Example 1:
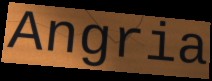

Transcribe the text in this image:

Angria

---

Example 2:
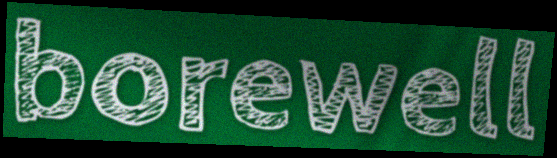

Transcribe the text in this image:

borewell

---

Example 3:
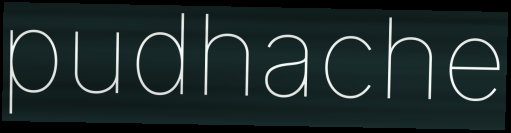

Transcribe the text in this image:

pudhache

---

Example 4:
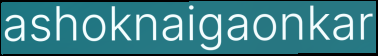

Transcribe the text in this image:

ashoknaigaonkar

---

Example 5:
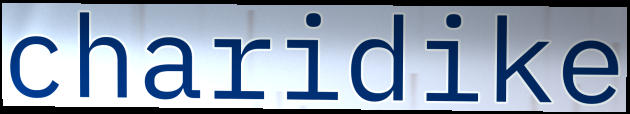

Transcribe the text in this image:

charidike